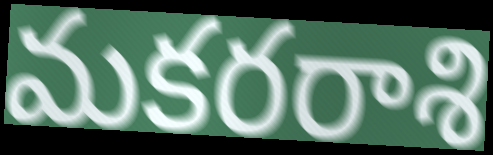
మకరరాశి